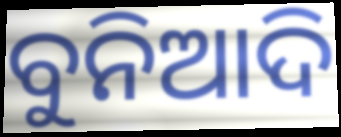
ବୁନିଆଦି